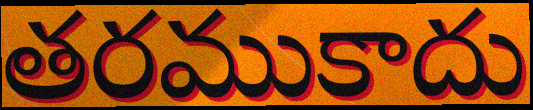
తరముకాదు